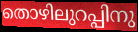
തൊഴിലുറപ്പിനു